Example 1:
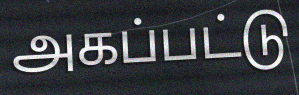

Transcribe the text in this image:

அகப்பட்டு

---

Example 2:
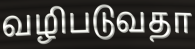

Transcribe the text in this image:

வழிபடுவதா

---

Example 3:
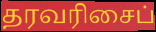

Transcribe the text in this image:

தரவரிசைப்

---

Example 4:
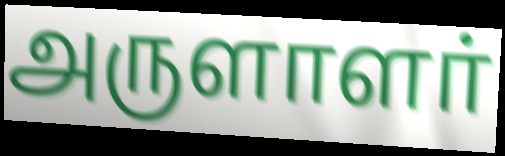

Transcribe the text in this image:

அருளாளர்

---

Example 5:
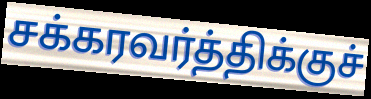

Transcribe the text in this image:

சக்கரவர்த்திக்குச்